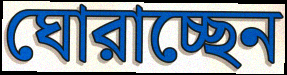
ঘোরাচ্ছেন